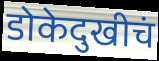
डोकेदुखीचं